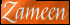
Zameen